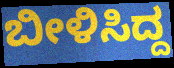
ಬೀಳಿಸಿದ್ದ